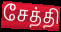
சேத்தி